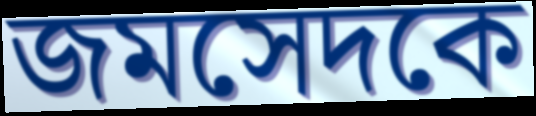
জমসেদকে